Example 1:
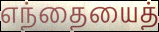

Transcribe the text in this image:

எந்தையைத்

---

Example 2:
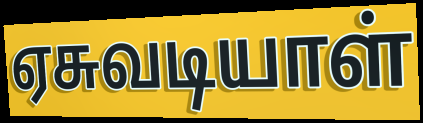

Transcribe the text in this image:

ஏசுவடியாள்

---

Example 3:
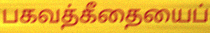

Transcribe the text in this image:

பகவத்கீதையைப்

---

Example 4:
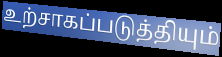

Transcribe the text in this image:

உற்சாகப்படுத்தியும்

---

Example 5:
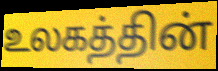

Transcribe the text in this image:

உலகத்தின்